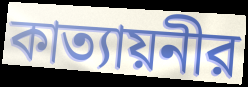
কাত্যায়নীর